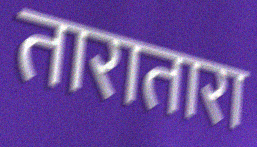
तारातारा